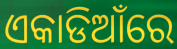
ଏକାଡିଆଁରେ